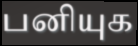
பனியுக